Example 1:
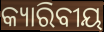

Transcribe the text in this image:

କ୍ୟାରିବୀୟ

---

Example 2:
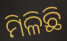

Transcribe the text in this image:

ମିଳିଛି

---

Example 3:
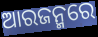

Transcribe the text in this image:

ଆରଜନ୍ମରେ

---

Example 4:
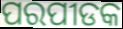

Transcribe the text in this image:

ପରପୀଡକ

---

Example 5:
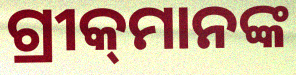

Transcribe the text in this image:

ଗ୍ରୀକ୍‌ମାନଙ୍କ